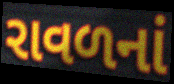
રાવળનાં